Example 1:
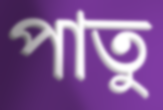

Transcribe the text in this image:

পাতু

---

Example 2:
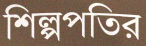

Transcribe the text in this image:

শিল্পপতির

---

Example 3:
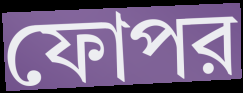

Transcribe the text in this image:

ফোপর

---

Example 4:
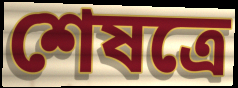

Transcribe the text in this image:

শেষত্রে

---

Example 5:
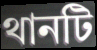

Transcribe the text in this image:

থানটি